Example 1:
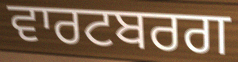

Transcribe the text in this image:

ਵਾਰਟਬਰਗ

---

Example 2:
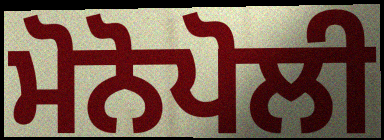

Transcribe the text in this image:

ਮੋਨੋਪੋਲੀ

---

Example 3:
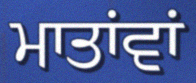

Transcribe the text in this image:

ਮਾਤਾਂਵਾਂ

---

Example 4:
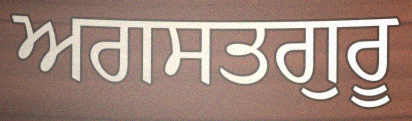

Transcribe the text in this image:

ਅਗਸਤਗੁਰੂ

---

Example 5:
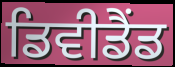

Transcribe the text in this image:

ਡਿਵੀਡੈਂਡ